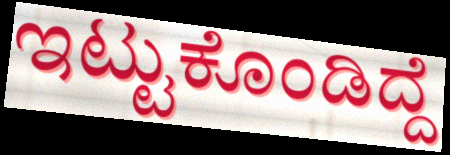
ಇಟ್ಟುಕೊಂಡಿದ್ದೆ